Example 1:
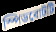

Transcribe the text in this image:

স্পিডবোটটি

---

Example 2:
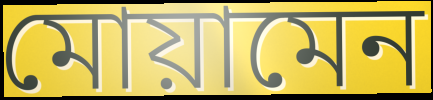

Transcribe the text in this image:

মোয়ামেন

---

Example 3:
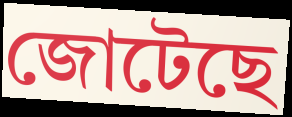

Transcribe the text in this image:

জোটেছে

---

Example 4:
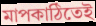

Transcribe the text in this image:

মাপকাঠিতেই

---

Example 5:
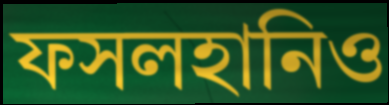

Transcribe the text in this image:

ফসলহানিও